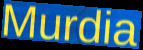
Murdia